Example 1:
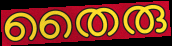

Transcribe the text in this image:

തൈരു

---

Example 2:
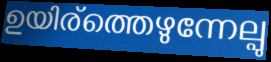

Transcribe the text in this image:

ഉയിര്ത്തെഴുന്നേല്പു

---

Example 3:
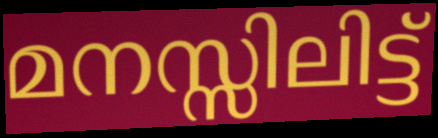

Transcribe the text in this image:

മനസ്സിലിട്ട്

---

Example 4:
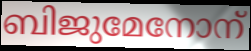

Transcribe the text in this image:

ബിജുമേനോന്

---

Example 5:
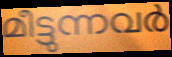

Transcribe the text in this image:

മീട്ടുന്നവർ